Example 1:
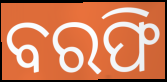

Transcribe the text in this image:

ବରଫି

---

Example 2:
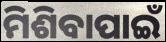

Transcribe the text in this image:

ମିଶିବାପାଇଁ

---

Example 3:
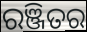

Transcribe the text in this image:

ରଞ୍ଜିତର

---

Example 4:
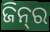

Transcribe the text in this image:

ଜିନ୍‌ର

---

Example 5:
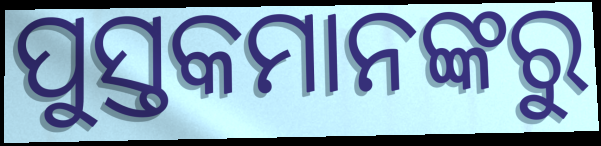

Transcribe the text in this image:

ପୁସ୍ତକମାନଙ୍କରୁ